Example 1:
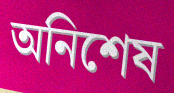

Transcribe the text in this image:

অনিশেষ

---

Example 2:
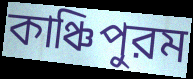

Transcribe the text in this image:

কাঞ্চিপুরম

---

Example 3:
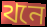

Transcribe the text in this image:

থনে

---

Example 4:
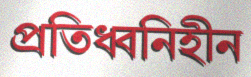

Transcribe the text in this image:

প্রতিধ্বনিহীন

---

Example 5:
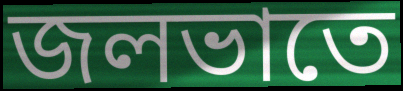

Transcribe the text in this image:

জলভাতে